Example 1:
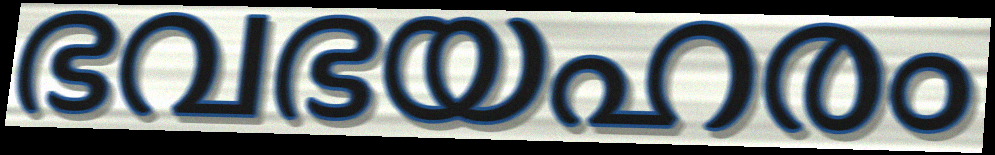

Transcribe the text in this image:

ഭവഭയഹരം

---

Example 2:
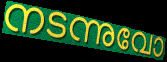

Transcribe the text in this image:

നടന്നുവോ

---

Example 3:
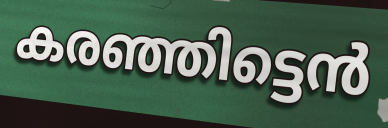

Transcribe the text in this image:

കരഞ്ഞിട്ടെൻ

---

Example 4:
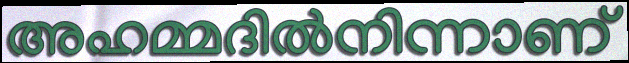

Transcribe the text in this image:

അഹമ്മദിൽനിന്നാണ്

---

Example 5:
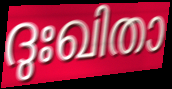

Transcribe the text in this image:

ദുഃഖിതാ